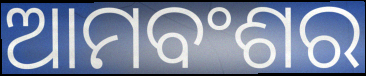
ଆମବଂଶର